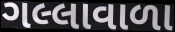
ગલ્લાવાળા